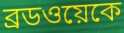
ব্রডওয়েকে